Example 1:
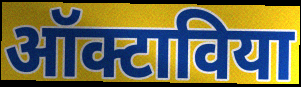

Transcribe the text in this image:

ऑक्टाविया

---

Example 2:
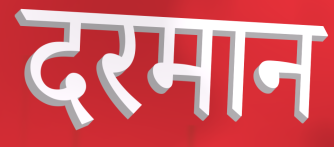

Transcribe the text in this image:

दरमान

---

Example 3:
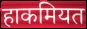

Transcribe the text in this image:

हाकमियत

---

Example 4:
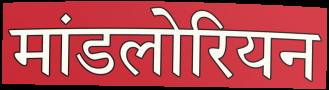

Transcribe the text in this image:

मांडलोरियन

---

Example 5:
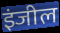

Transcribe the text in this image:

इंजील